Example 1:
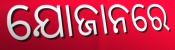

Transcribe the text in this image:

ଯୋଜାନରେ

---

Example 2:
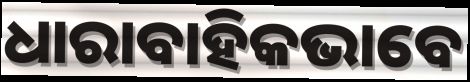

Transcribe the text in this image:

ଧାରାବାହିକଭାବେ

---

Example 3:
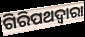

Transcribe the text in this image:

ଗିରିପଥଦ୍ୱାରା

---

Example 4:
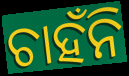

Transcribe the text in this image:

ଚାହଁନି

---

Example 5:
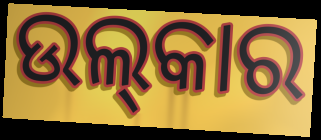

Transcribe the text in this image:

ଉଲ୍‌କାର